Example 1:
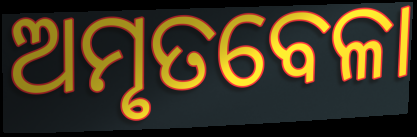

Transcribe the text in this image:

ଅମୃତବେଳା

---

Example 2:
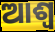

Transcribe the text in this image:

ଆଶ୍ୱ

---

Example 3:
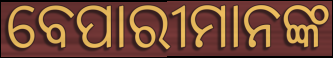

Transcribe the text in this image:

ବେପାରୀମାନଙ୍କ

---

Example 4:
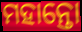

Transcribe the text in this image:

ମହାନ୍ତୋ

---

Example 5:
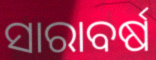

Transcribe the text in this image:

ସାରାବର୍ଷ